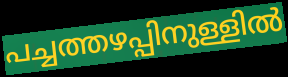
പച്ചത്തഴപ്പിനുള്ളിൽ